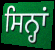
ਸਿਨ੍ਹਾਂ